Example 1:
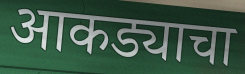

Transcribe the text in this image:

आकड्याचा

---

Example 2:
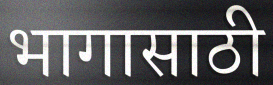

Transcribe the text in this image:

भागासाठी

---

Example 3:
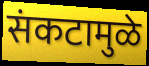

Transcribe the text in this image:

संकटामुळे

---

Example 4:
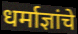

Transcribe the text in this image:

धर्माज्ञांचे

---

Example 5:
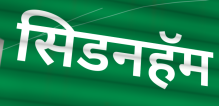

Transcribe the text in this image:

सिडनहॅम